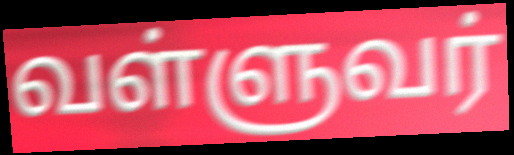
வள்ளுவர்